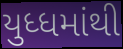
યુધ્ધમાંથી